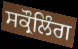
ਸਕ੍ਰੌਲਿੰਗ